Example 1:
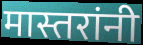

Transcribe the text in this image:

मास्तरांनी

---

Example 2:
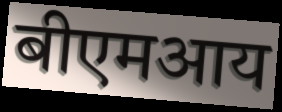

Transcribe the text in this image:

बीएमआय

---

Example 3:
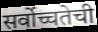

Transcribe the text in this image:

सर्वोच्चतेची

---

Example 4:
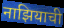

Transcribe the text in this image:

नाझियाची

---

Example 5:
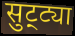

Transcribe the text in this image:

सुट्ट्या